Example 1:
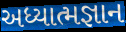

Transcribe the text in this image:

અધ્યાત્મજ્ઞાન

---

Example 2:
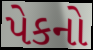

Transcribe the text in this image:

પેકનો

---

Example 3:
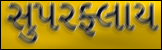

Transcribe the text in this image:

સુપરફ્લાય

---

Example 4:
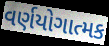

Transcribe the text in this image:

વર્ણયોગાત્મક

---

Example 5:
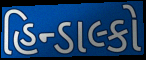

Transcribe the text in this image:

હિન્ડાલ્કો